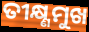
ତୀକ୍ଷ୍ଣମୁଖ